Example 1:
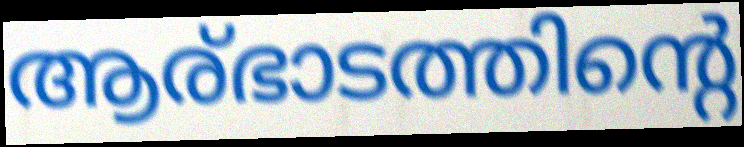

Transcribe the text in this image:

ആര്ഭാടത്തിന്റെ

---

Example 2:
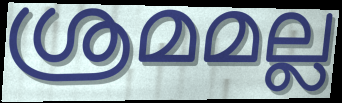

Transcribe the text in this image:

ശ്രമമല്ല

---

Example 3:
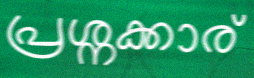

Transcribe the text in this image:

പ്രശ്നക്കാര്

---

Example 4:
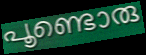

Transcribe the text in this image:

പൂണ്ടൊരു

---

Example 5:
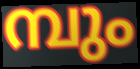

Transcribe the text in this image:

മ്പും